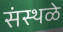
संस्थळे